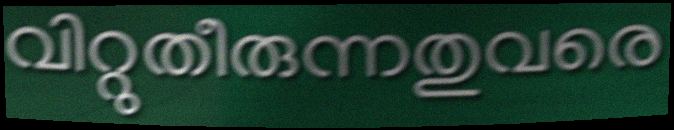
വിറ്റുതീരുന്നതുവരെ